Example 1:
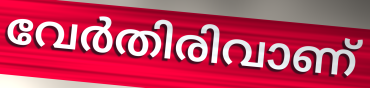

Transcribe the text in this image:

വേർതിരിവാണ്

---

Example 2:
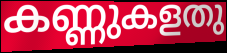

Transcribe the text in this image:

കണ്ണുകളതു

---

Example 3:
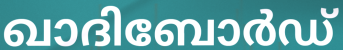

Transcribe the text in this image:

ഖാദിബോർഡ്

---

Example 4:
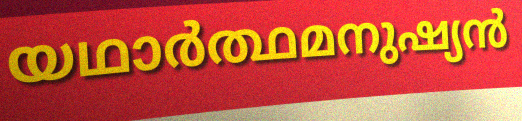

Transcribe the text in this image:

യഥാർത്ഥമനുഷ്യൻ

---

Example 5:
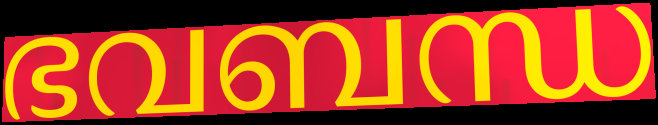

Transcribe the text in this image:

ഭവബന്ധ